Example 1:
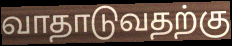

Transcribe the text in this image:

வாதாடுவதற்கு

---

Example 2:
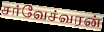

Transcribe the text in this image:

சர்வேச்வரன்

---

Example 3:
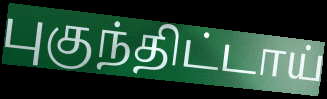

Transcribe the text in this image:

புகுந்திட்டாய்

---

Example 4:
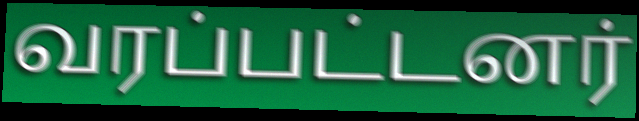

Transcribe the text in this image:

வரப்பட்டனர்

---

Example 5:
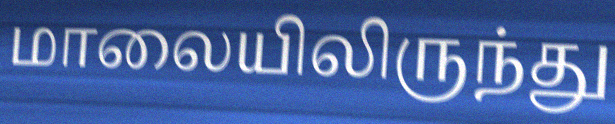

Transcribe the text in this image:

மாலையிலிருந்து